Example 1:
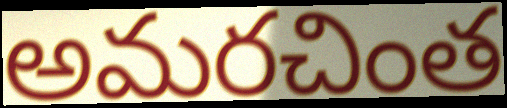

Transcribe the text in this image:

అమరచింత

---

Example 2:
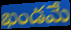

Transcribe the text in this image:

ఖండమే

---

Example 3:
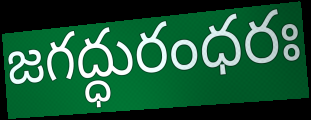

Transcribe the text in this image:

జగద్ధురంధరః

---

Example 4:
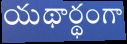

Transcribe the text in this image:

యథార్థంగా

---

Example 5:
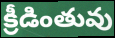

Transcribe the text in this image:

క్రీడింతువు